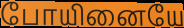
போயினையே